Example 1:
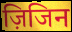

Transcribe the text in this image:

ज़िजिन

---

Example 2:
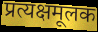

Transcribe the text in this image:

प्रत्यक्षमूलक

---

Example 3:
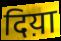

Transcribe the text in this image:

दिय़ा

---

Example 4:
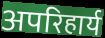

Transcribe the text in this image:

अपरिहार्य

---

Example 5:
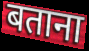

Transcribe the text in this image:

बताना